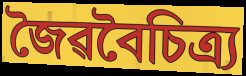
জৈৱবৈচিত্ৰ্য